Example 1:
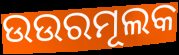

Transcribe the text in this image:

ଉଉରମୂଲକ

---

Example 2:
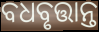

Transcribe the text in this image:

ବଧବୃତ୍ତାନ୍ତ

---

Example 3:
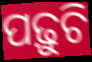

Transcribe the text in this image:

ପଢ଼ୁଚି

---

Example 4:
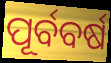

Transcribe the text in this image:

ପୂର୍ବବର୍ଷ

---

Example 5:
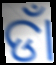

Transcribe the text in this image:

ଡାଁ